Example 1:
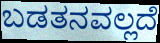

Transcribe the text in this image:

ಬಡತನವಲ್ಲದೆ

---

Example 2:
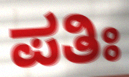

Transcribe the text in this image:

ಪತಿಃ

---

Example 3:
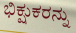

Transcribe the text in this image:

ಭಿಕ್ಷುಕರನ್ನು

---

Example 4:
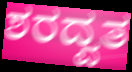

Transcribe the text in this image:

ಶರದ್ವತ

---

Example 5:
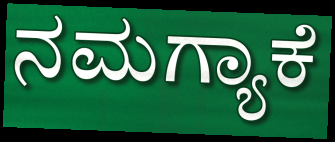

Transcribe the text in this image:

ನಮಗ್ಯಾಕೆ